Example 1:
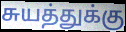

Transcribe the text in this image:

சுயத்துக்கு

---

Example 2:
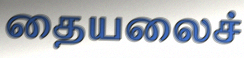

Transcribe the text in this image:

தையலைச்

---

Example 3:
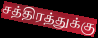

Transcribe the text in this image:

சத்திரத்துக்கு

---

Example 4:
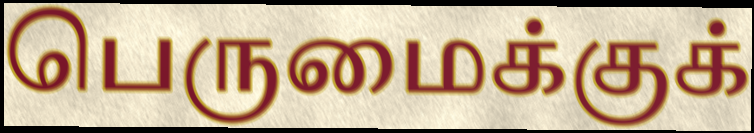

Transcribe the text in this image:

பெருமைக்குக்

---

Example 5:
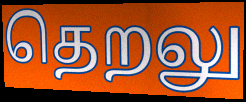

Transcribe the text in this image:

தெறலு